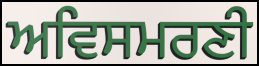
ਅਵਿਸਮਰਣੀ